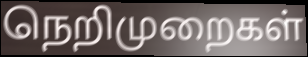
நெறிமுறைகள்